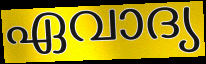
ഏവാദ്യ